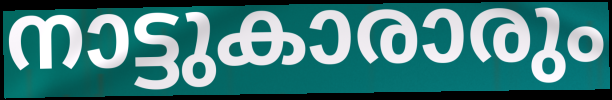
നാട്ടുകാരാരും